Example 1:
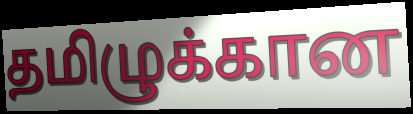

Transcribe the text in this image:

தமிழுக்கான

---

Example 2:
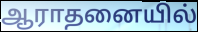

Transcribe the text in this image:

ஆராதனையில்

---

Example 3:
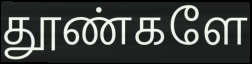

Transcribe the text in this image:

தூண்களே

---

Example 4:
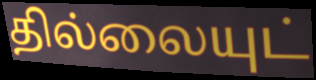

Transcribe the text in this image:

தில்லையுட்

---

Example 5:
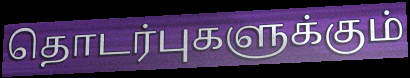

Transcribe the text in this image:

தொடர்புகளுக்கும்